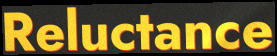
Reluctance